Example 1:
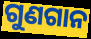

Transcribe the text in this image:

ଗୁଣଗାନ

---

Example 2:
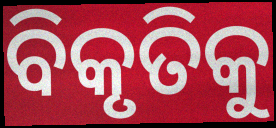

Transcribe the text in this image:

ବିକୃତିକୁ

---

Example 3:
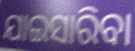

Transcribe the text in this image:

ଯାଇସାରିବା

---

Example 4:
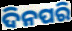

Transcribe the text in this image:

ଦିନପରି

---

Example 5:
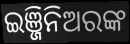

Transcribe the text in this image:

ଇଞ୍ଜିନିଅରଙ୍କ